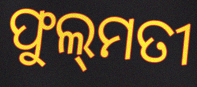
ଫୁଲ୍‍ମତୀ